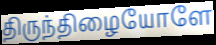
திருந்திழையோளே